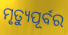
ମୃତ୍ୟୁପୂର୍ବର